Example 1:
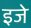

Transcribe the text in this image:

इजे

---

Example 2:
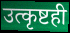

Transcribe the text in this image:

उत्कृष्टही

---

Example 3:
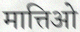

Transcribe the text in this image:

मात्तिओ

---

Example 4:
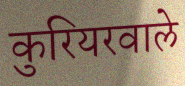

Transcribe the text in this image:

कुरियरवाले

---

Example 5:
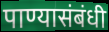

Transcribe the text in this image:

पाण्यासंबंधी